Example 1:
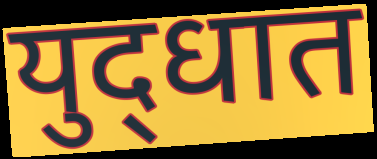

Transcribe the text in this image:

युद्धात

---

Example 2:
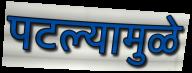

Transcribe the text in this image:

पटल्यामुळे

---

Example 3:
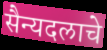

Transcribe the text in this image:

सैन्यदलाचे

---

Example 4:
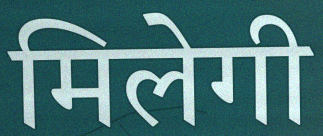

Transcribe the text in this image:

मिलेगी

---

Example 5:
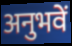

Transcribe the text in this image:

अनुभवें